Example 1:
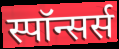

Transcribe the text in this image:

स्पॉन्सर्स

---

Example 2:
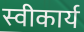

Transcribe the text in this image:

स्वीकार्य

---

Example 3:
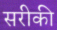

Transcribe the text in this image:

सरीकी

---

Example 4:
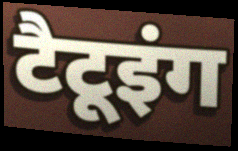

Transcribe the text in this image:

टैटूइंग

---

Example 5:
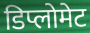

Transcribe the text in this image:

डिप्लोमेट